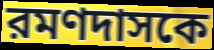
রমণদাসকে